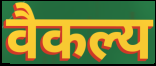
वैकल्य